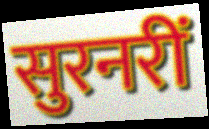
सुरनरीं